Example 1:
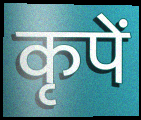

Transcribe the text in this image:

कृपें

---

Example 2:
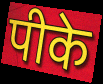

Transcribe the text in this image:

पीके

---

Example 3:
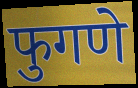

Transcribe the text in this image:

फुगणे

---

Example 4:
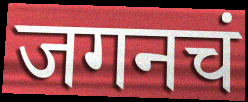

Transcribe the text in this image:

जगनचं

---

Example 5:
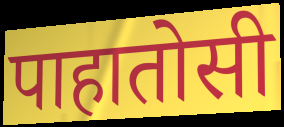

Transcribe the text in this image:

पाहातोसी